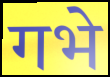
गभे